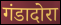
गंडादोरा